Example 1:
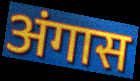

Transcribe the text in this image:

अंगास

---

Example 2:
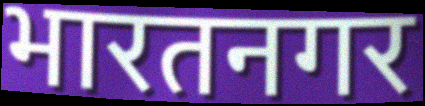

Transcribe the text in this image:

भारतनगर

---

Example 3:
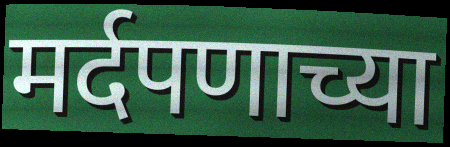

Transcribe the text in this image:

मर्दपणाच्या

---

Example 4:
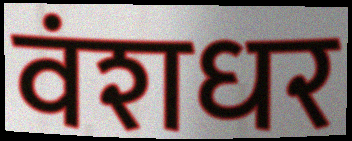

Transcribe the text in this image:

वंशधर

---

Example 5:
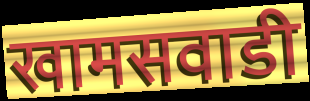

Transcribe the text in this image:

खामसवाडी